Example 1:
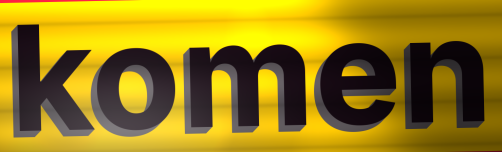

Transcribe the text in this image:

komen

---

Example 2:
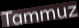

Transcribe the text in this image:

Tammuz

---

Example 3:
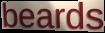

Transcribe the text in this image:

beards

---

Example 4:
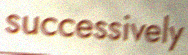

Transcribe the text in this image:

successively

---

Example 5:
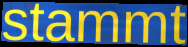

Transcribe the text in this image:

stammt